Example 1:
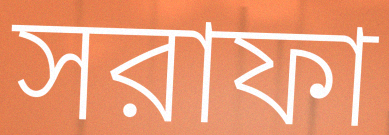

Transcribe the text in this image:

সরাফা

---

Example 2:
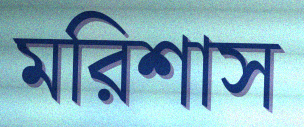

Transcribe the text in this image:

মরিশাস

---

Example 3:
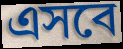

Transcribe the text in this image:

এসবে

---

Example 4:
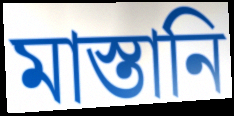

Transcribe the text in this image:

মাস্তানি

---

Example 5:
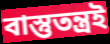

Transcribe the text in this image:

বাস্তুতন্ত্রই